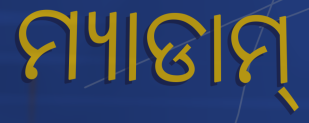
ମ୍ଯାଡାମ୍